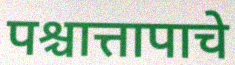
पश्चात्तापाचे